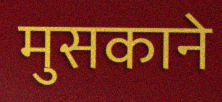
मुसकाने